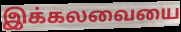
இக்கலவையை